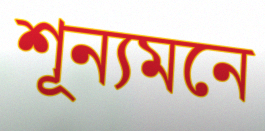
শূন্যমনে